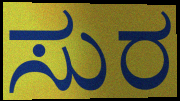
ಸುರ